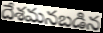
దేశమనబడిన